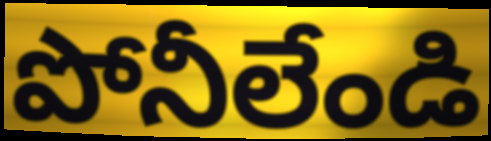
పోనీలేండి